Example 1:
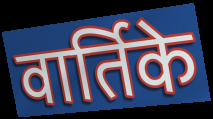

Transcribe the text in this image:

वार्तिके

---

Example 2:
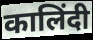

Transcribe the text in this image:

कालिंदी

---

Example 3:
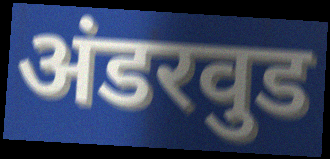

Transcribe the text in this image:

अंडरवुड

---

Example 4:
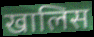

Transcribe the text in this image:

खालिस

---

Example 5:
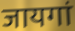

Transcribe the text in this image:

जायगां